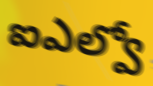
ఐఎల్వో